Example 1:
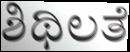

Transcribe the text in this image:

ಶಿಥಿಲತೆ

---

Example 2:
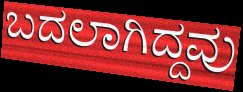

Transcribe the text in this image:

ಬದಲಾಗಿದ್ದವು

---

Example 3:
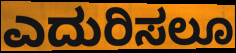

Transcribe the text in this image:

ಎದುರಿಸಲೂ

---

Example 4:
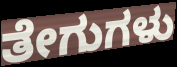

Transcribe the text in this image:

ತೇಗುಗಳು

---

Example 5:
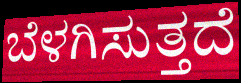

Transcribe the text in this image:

ಬೆಳಗಿಸುತ್ತದೆ